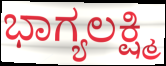
ಭಾಗ್ಯಲಕ್ಷ್ಮಿ